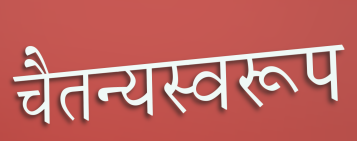
चैतन्यस्वरूप